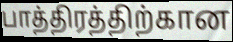
பாத்திரத்திற்கான